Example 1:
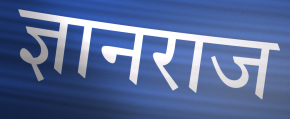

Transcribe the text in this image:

ज्ञानराज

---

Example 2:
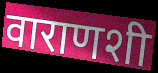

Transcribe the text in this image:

वाराणशी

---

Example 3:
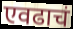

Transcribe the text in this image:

एवढाचं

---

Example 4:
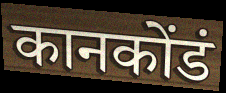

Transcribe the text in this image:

कानकोंडं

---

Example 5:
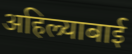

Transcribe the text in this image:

अहिल्याबाई